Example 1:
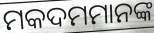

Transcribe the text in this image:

ମକଦମମାନଙ୍କ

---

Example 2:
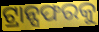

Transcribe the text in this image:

ଟ୍ରାନ୍ସଫରକୁ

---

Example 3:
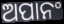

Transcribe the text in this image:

ଅପାନଂ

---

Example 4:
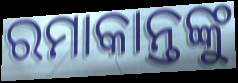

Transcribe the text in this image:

ରମାକାନ୍ତଙ୍କୁ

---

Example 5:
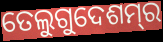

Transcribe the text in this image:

ତେଲୁଗୁଦେଶମ୍‌ର